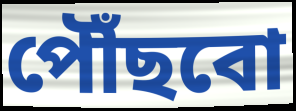
পৌঁছবো